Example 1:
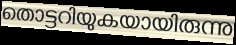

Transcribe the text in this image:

തൊട്ടറിയുകയായിരുന്നു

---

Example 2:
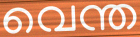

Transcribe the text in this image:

വെന്ത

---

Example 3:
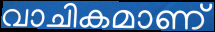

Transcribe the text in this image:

വാചികമാണ്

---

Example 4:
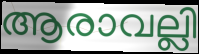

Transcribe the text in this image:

ആരാവല്ലി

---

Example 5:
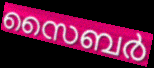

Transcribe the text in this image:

സൈബർ